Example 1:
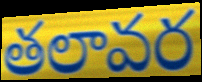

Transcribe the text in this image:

తలావర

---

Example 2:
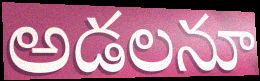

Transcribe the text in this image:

అడలనూ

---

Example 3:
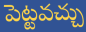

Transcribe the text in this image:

పెట్టవచ్చు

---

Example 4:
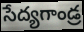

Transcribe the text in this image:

సేద్యగాండ్ర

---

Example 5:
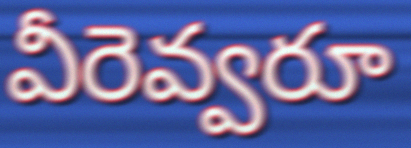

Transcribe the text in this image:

వీరెవ్వరూ